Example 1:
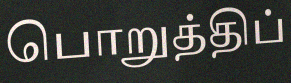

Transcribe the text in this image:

பொறுத்திப்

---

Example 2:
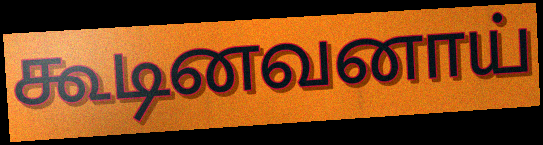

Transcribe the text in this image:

கூடினவனாய்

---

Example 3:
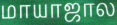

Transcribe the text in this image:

மாயாஜால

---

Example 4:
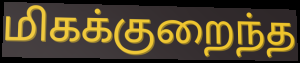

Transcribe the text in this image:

மிகக்குறைந்த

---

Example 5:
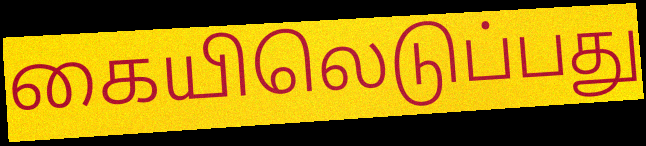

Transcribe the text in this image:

கையிலெடுப்பது